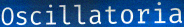
Oscillatoria